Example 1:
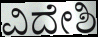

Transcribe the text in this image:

ವಿದೇಶಿ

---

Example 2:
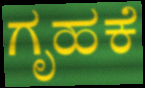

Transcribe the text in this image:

ಗೃಹಕೆ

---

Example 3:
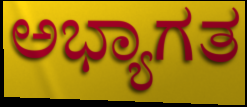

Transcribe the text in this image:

ಅಭ್ಯಾಗತ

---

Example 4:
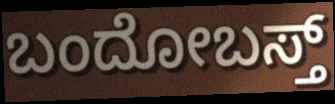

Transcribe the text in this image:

ಬಂದೋಬಸ್ತ್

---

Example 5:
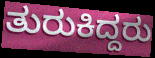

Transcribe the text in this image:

ತುರುಕಿದ್ದರು